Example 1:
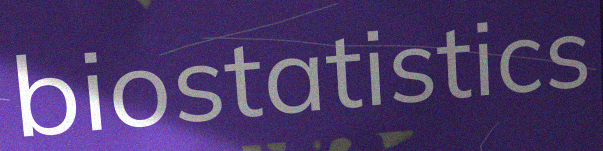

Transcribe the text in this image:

biostatistics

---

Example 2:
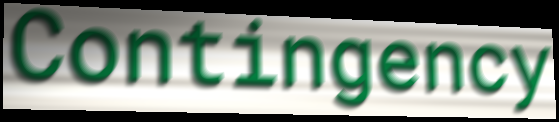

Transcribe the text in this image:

Contingency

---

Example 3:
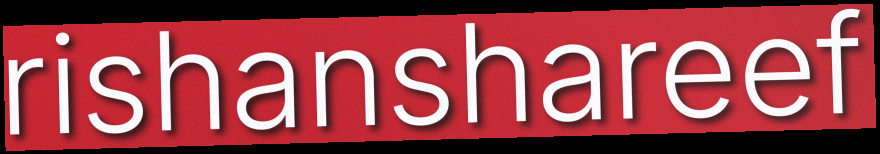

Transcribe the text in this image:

rishanshareef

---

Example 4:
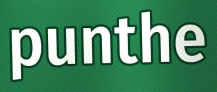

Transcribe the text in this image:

punthe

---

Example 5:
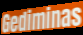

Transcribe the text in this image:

Gediminas